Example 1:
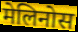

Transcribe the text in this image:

मेलिनोस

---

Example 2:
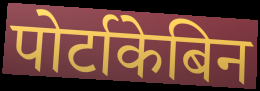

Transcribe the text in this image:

पोर्टाकेबिन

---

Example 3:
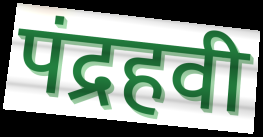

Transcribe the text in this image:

पंद्रहवी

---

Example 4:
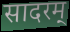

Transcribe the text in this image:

सादरम्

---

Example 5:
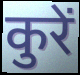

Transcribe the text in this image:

कुरें